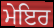
ਮੇਇਰ